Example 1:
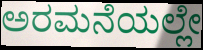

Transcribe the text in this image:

ಅರಮನೆಯಲ್ಲೇ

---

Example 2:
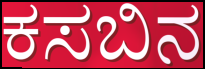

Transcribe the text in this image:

ಕಸಬಿನ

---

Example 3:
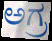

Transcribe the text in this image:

ಅಗ್ರ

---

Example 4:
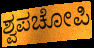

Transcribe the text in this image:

ಶ್ವಪಚೋಪಿ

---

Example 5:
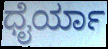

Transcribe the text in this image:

ಧೈರ್ಯಾ